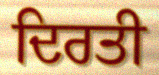
ਦਿਰਤੀ